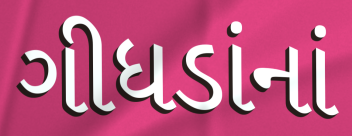
ગીધડાંનાં